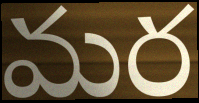
మర